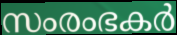
സംരംഭകർ